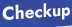
Checkup